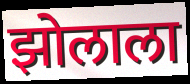
झोलाला